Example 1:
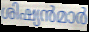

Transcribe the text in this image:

ശിഷ്യൻമാർ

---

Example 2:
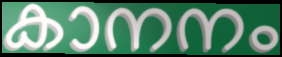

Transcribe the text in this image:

കാനനം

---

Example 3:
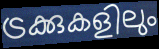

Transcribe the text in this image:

ട്രക്കുകളിലും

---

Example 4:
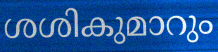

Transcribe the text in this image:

ശശികുമാറും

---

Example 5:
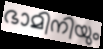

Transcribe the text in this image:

ഭാമിനിയും